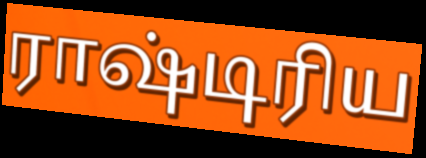
ராஷ்டிரிய